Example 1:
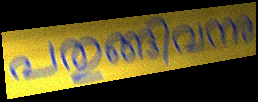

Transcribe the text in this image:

പതുങ്ങിവന്നു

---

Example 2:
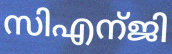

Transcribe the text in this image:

സിഎന്ജി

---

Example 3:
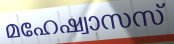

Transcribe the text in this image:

മഹേഷ്വാസസ്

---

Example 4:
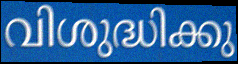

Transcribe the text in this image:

വിശുദ്ധിക്കു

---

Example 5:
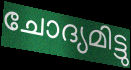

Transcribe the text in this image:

ചോദ്യമിട്ടു